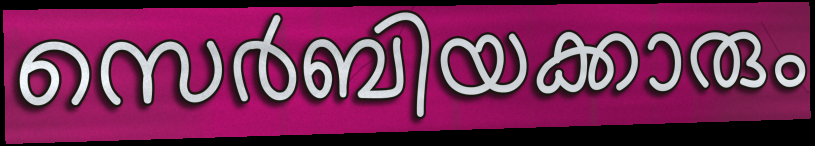
സെർബിയക്കാരും